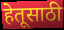
हेतूसाठी